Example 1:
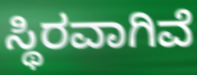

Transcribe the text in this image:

ಸ್ಥಿರವಾಗಿವೆ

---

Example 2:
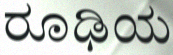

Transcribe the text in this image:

ರೂಢಿಯ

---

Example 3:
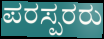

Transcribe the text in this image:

ಪರಸ್ಪರರು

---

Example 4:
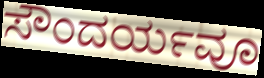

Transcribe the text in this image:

ಸೌಂದರ್ಯವೂ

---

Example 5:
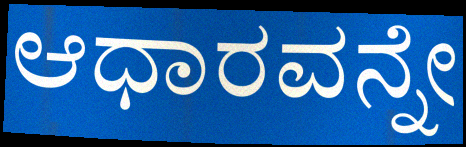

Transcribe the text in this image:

ಆಧಾರವನ್ನೇ